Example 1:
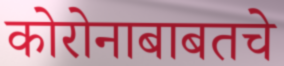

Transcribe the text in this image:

कोरोनाबाबतचे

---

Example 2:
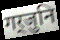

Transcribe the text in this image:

गर्जुनि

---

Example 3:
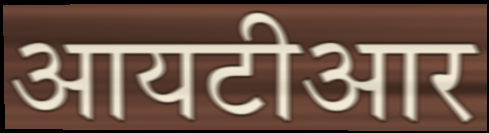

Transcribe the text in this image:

आयटीआर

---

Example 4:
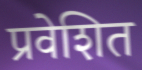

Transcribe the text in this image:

प्रवेशित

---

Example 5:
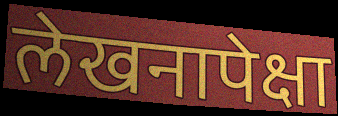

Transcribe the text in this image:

लेखनापेक्षा